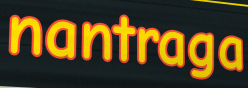
nantraga